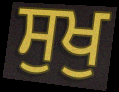
ਸੁਖੁ